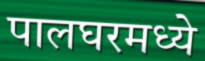
पालघरमध्ये